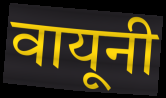
वायूनी